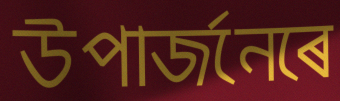
উপাৰ্জনেৰে